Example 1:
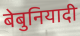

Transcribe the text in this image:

बेबुनियादी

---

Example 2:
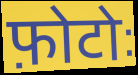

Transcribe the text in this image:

फ़ोटोः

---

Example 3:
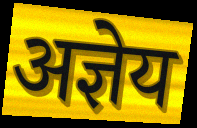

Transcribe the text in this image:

अज्ञेय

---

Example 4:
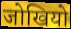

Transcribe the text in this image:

जोखियो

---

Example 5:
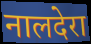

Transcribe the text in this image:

नालदेरा